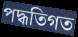
পদ্ধতিগত